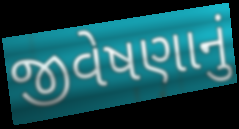
જીવેષણાનું